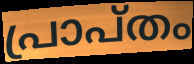
പ്രാപ്തം